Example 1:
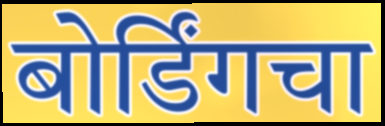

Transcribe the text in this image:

बोर्डिंगचा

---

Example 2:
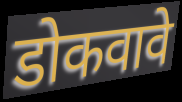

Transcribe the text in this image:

डोकवावे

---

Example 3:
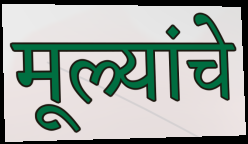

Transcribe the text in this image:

मूल्यांचे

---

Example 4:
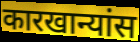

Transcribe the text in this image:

कारखान्यांस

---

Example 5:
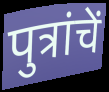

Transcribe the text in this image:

पुत्रांचें